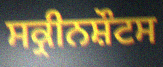
ਸਕ੍ਰੀਨਸ਼ੌਟਸ